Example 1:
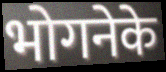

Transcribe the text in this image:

भोगनेके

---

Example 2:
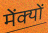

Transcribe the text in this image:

मेंक्यों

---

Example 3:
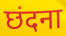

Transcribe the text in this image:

छंदना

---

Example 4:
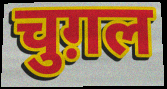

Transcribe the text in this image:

चुग़ल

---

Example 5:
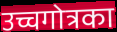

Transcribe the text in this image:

उच्चगोत्रका